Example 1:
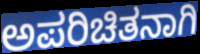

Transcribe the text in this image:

ಅಪರಿಚಿತನಾಗಿ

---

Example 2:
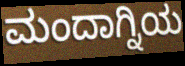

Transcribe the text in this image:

ಮಂದಾಗ್ನಿಯ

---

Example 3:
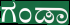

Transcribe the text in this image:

ಗಂಡಾ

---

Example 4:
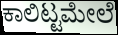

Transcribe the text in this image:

ಕಾಲಿಟ್ಟಮೇಲೆ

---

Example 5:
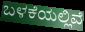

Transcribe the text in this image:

ಬಳಕೆಯಲ್ಲಿವೆ